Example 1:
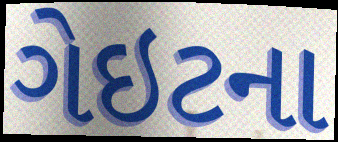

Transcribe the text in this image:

ગેઇટના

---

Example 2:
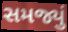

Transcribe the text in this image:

સમજ્યું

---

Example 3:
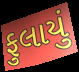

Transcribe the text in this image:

ફુલાયું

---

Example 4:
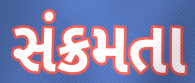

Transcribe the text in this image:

સંક્રમતા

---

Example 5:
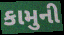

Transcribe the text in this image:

કામુની